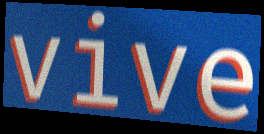
vive